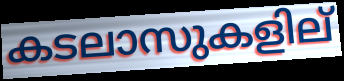
കടലാസുകളില്